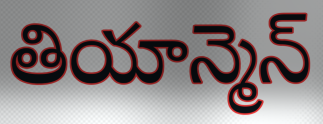
తియాన్మెన్